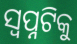
ସ୍ୱପ୍ନଟିକୁ